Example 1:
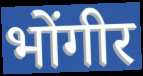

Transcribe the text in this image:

भोंगीर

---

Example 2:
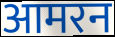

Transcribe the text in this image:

आमरन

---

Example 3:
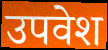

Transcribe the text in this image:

उपवेश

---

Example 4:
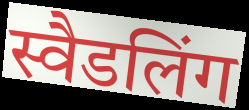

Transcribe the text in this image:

स्वैडलिंग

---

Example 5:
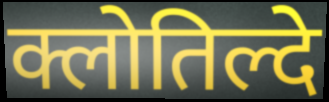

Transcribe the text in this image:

क्लोतिल्दे